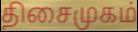
திசைமுகம்